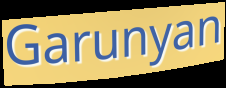
Garunyan